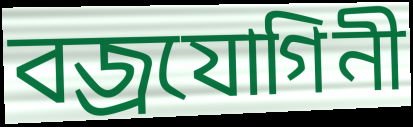
বজ্ৰযোগিনী